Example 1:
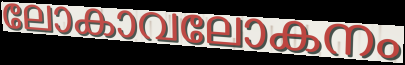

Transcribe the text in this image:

ലോകാവലോകനം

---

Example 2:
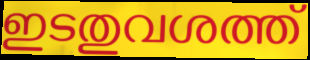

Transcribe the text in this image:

ഇടതുവശത്ത്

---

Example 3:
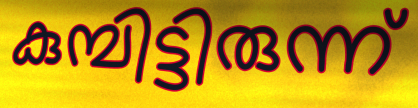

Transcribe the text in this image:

കുമ്പിട്ടിരുന്ന്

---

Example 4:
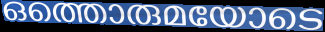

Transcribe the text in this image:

ഒത്തൊരുമയോടെ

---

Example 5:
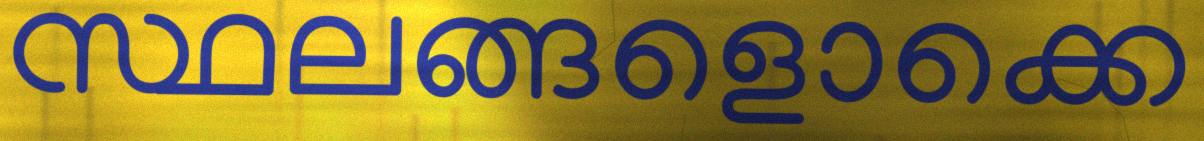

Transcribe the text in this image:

സ്ഥലങ്ങളൊക്കെ